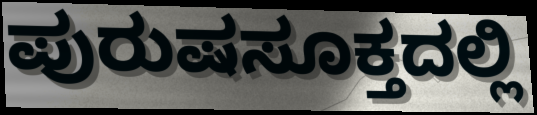
ಪುರುಷಸೂಕ್ತದಲ್ಲಿ